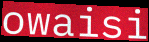
owaisi